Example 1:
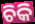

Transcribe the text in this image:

ଚିକି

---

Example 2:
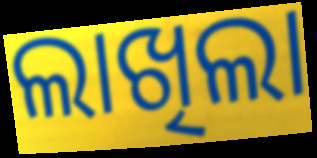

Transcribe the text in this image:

ଲାଖିଲା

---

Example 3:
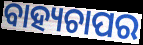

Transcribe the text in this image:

ବାହ୍ୟଚାପର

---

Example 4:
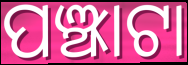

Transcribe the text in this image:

ପଞ୍ଝାଟା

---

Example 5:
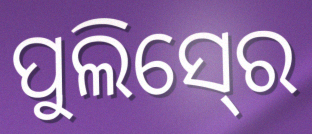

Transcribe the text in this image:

ପୁଲିସ୍‍ରେ